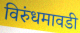
विरुंधमावडी